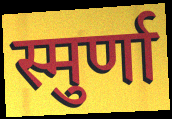
स्मुर्णा